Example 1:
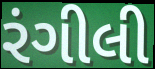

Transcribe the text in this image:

રંગીલી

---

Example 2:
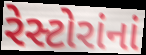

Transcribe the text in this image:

રેસ્ટોરાંનાં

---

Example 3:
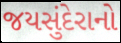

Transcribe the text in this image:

જયસુંદેરાનો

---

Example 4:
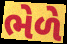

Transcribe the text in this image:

ભેળે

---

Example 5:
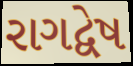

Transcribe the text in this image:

રાગદ્વેષ